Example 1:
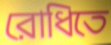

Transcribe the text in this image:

রোধিতে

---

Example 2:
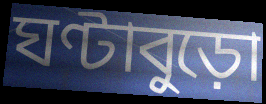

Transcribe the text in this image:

ঘণ্টাবুড়ো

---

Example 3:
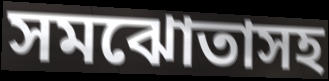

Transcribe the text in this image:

সমঝোতাসহ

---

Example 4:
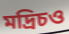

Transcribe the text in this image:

মদ্রিচও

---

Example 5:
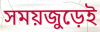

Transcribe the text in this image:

সময়জুড়েই